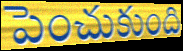
పెంచుకుంది